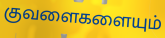
குவளைகளையும்